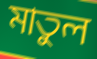
মাতুল